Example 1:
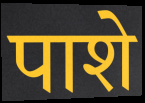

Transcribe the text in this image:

पाशे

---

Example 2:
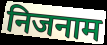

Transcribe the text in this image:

निजनाम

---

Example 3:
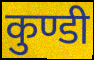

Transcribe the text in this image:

कुण्डी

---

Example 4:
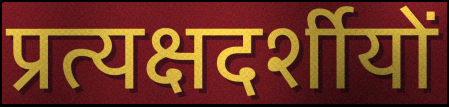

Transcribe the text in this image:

प्रत्यक्षदर्शीयों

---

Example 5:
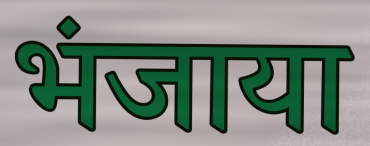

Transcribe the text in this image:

भंजाया